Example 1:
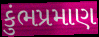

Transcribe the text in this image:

કુંભપ્રમાણ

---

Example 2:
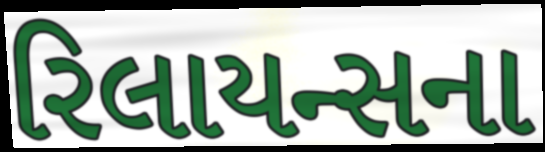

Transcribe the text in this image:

રિલાયન્સના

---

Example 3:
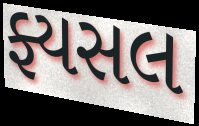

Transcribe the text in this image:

ફ્યસલ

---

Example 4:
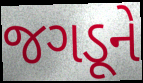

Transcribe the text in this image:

જગડૂને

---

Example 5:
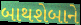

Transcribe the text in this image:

બાથશેબાને